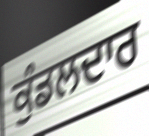
ਕੁੰਡਲਦਾਰ